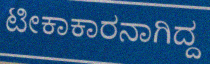
ಟೀಕಾಕಾರನಾಗಿದ್ದ